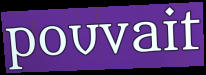
pouvait